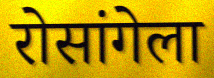
रोसांगेला